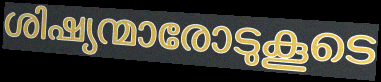
ശിഷ്യന്മാരോടുകൂടെ